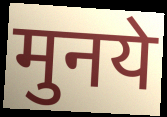
मुनये